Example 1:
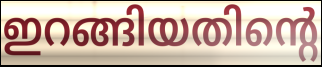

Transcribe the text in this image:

ഇറങ്ങിയതിന്റെ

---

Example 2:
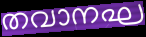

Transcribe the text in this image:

തവാനഘ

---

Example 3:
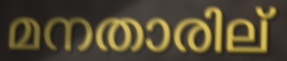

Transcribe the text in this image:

മനതാരില്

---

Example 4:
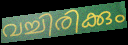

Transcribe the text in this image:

വച്ചിരിക്കും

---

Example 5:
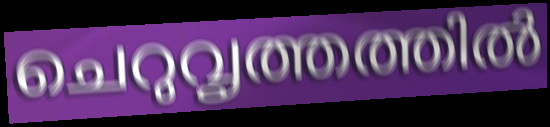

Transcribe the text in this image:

ചെറുവൃത്തത്തിൽ